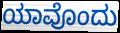
ಯಾವೊಂದು